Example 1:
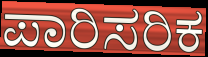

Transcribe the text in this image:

ಪಾರಿಸರಿಕ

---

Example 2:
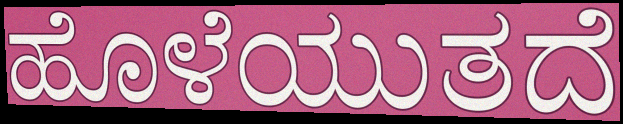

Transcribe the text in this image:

ಹೊಳೆಯುತದೆ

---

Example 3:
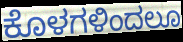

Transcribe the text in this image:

ಕೊಳಗಳಿಂದಲೂ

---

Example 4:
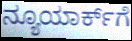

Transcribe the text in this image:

ನ್ಯೂಯಾರ್ಕ್‌ಗೆ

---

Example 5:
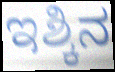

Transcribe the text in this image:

ಇಶ್ಕಿನ